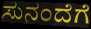
ಸುನಂದೆಗೆ